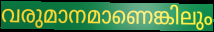
വരുമാനമാണെങ്കിലും